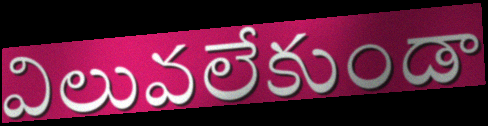
విలువలేకుండా